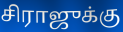
சிராஜுக்கு